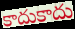
కాదుకాదు